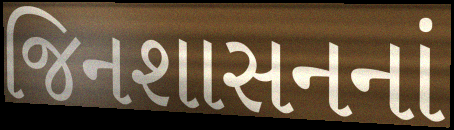
જિનશાસનનાં